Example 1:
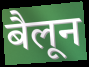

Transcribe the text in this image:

बैलून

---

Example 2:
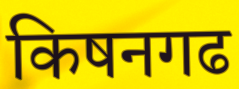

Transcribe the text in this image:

किषनगढ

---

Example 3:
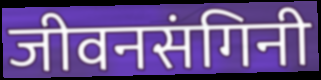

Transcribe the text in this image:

जीवनसंगिनी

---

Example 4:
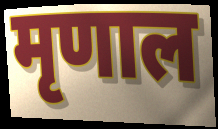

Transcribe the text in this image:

मृणाल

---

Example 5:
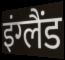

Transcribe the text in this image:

इंग्‍लैंड